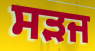
ਸੜਜ